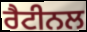
ਰੈਟੀਨਲ